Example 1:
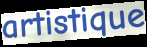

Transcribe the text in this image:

artistique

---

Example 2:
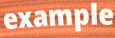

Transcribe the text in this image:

example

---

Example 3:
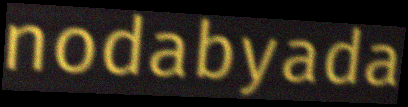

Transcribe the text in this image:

nodabyada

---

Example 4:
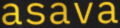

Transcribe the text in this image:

asava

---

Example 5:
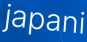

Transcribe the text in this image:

japani